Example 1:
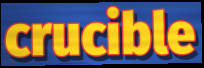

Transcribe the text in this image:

crucible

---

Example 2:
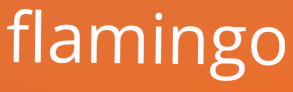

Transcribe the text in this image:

flamingo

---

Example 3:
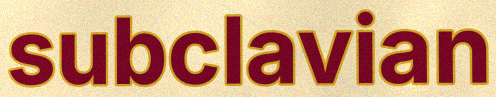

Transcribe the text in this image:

subclavian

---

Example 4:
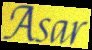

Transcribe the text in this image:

Asar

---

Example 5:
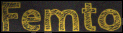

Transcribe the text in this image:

Femto